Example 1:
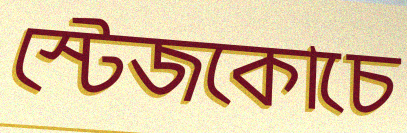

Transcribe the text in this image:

স্টেজকোচে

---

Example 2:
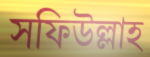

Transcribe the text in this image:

সফিউল্লাহ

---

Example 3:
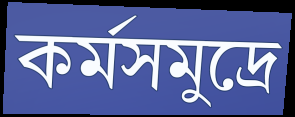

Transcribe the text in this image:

কর্মসমুদ্রে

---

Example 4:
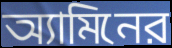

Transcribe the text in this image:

অ্যামিনের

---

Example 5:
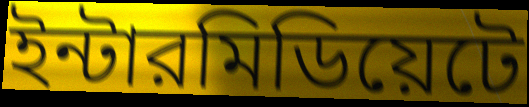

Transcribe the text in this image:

ইন্টারমিডিয়েটে